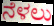
ನೆಳಲು